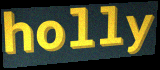
holly